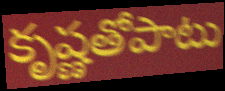
కృష్ణతోపాటు